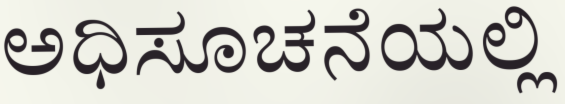
ಅಧಿಸೂಚನೆಯಲ್ಲಿ